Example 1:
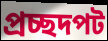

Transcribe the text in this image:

প্রচ্ছদপট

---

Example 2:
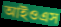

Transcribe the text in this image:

আইওএস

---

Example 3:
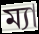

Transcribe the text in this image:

ম্যা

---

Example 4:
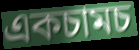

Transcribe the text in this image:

একচামচ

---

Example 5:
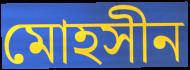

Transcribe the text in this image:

মোহসীন